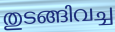
തുടങ്ങിവച്ച